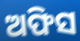
ଅଫିସ